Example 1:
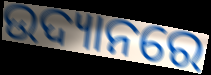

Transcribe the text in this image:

ଉଦ୍ୟାନରେ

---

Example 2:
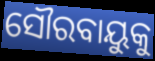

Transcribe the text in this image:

ସୌରବାୟୁକୁ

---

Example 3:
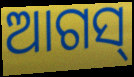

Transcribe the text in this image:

ଆଗସ୍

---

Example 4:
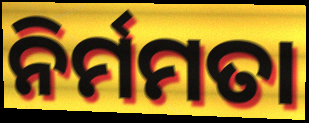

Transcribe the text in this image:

ନିର୍ମମତା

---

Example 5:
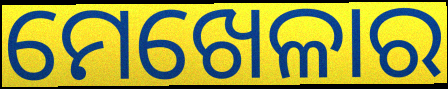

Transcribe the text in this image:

ମେଖେଳାର